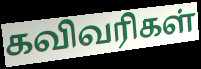
கவிவரிகள்